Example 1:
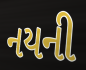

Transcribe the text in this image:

નયની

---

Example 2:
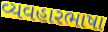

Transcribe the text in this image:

વ્યવહારભાષા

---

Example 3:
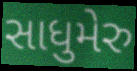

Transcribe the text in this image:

સાધુમેરુ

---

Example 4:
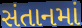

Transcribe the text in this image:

સંતાનમાં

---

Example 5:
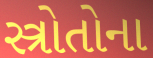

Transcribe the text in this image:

સ્ત્રોતોના